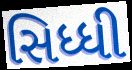
સિધ્ધી